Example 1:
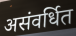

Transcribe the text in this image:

असंवर्धित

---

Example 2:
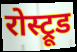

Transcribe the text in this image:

रोस्ट्रूड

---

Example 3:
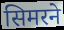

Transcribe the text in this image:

सिमरने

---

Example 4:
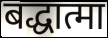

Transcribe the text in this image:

बद्धात्मा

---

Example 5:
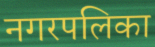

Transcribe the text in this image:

नगरपलिका